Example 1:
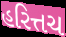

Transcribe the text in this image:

હરિત્તચ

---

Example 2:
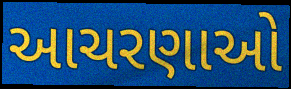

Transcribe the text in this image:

આચરણાઓ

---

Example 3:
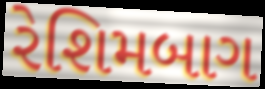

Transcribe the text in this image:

રેશિમબાગ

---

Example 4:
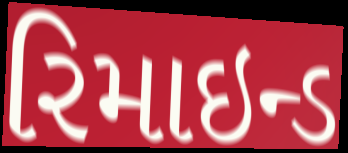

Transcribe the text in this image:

રિમાઇન્ડ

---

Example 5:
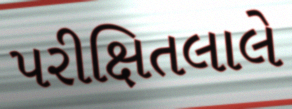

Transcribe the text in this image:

પરીક્ષિતલાલે